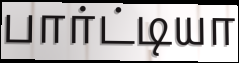
பார்ட்டியா